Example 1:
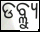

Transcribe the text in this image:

ଡବ୍ଲ୍ୟୁ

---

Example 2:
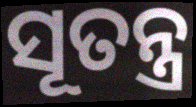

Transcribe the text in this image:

ସୂତନ୍ତ୍ର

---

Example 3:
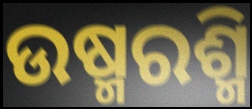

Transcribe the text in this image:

ଉଷ୍ମରଶ୍ମି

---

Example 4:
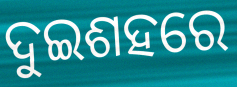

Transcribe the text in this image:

ଦୁଇଶହରେ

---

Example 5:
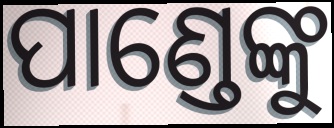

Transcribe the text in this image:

ପାଣ୍ଡେଙ୍କୁ